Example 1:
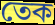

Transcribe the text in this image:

তেক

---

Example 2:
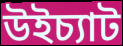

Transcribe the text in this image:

উইচ্যাট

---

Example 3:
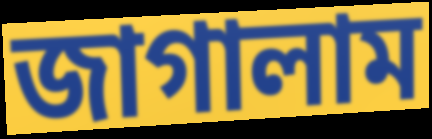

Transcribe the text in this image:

জাগালাম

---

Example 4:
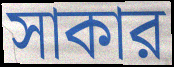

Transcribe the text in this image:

সাকার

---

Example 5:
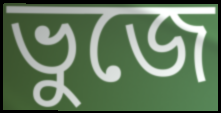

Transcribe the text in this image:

ভুজে